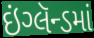
ઇંગ્લૅન્ડમાં